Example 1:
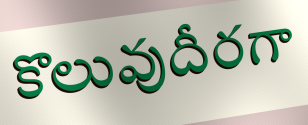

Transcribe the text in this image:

కొలువుదీరగా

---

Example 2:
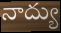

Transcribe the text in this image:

నాద్యు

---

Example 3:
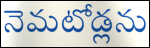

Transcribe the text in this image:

నెమటోడ్లను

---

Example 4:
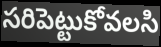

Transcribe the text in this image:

సరిపెట్టుకోవలసి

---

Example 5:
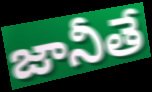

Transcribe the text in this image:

జానీతే